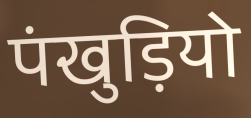
पंखुड़ियो